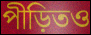
পীড়িতও